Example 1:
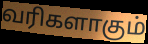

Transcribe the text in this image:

வரிகளாகும்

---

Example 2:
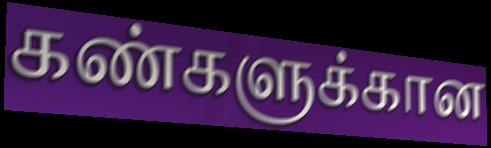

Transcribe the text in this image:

கண்களுக்கான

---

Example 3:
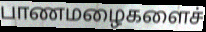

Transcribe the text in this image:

பாணமழைகளைச்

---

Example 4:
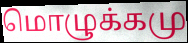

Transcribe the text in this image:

மொழுக்கமு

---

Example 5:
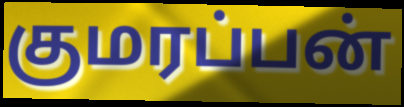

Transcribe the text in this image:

குமரப்பன்